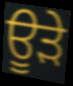
ਊੜੇ